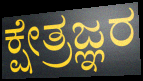
ಕ್ಷೇತ್ರಜ್ಞರ